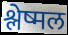
श्लेष्मल